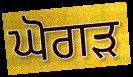
ਘੋਗੜ